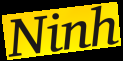
Ninh